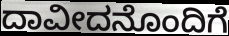
ದಾವೀದನೊಂದಿಗೆ